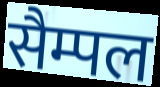
सैम्पल